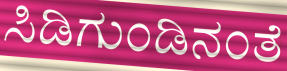
ಸಿಡಿಗುಂಡಿನಂತೆ